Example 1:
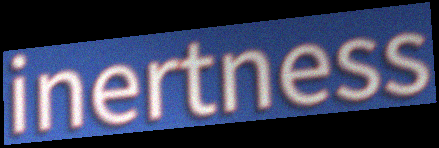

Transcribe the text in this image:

inertness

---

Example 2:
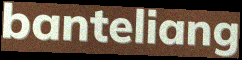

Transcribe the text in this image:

banteliang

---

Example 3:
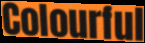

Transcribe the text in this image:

Colourful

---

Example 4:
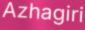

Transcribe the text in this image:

Azhagiri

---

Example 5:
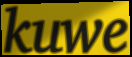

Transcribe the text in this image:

kuwe